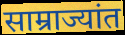
साम्राज्यांत